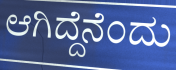
ಆಗಿದ್ದೆನೆಂದು